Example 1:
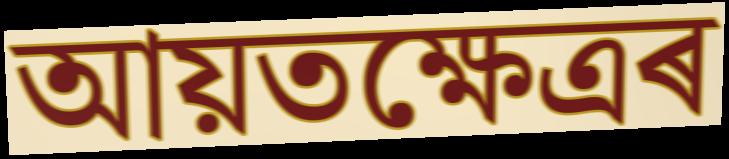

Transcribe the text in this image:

আয়তক্ষেত্ৰৰ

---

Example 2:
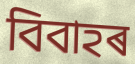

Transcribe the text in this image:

বিবাহৰ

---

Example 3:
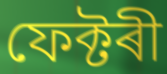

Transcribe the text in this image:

ফেক্টৰী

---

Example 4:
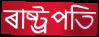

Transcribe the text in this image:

ৰাষ্ট্ৰপতি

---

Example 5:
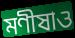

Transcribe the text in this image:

মণীষাও